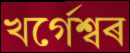
খৰ্গেশ্বৰ